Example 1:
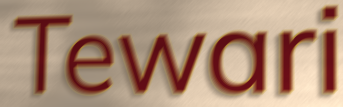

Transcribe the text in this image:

Tewari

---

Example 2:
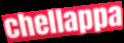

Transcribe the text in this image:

chellappa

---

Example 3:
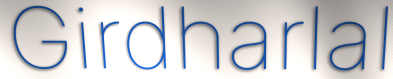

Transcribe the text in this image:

Girdharlal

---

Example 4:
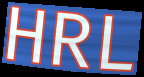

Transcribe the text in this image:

HRL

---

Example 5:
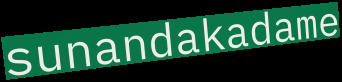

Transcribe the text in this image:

sunandakadame